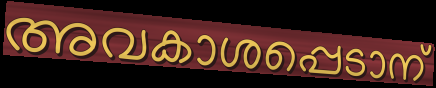
അവകാശപ്പെടാന്